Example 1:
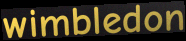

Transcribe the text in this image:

wimbledon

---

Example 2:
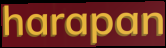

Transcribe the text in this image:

harapan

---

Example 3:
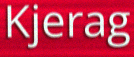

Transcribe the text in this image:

Kjerag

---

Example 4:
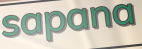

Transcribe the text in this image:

sapana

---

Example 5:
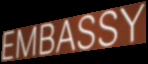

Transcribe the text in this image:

EMBASSY